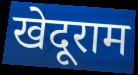
खेदूराम